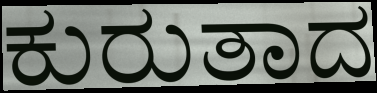
ಕುರುತಾದ